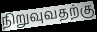
நிறுவுவதற்கு